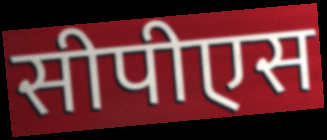
सीपीएस